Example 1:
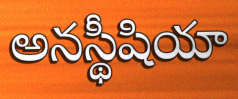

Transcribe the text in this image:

అనస్థీషియా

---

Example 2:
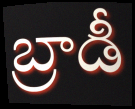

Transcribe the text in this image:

బ్రాడీ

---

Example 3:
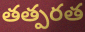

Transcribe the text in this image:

తత్పరత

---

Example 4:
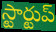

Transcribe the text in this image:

స్టార్టుప్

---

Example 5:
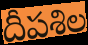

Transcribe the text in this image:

దీపశిల